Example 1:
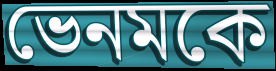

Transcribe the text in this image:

ভেনমকে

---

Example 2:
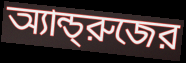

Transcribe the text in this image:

অ্যান্ড্‌রুজের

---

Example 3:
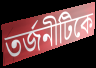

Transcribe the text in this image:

তর্জনীটিকে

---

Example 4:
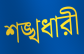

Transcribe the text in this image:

শঙ্খধারী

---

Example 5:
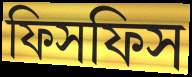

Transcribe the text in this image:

ফিসফিস